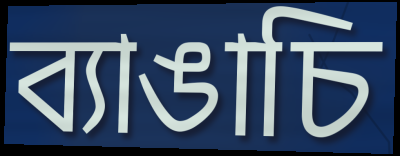
ব্যাঙাচি